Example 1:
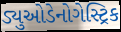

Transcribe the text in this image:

ડ્યુઓડેનોગેસ્ટ્રિક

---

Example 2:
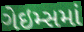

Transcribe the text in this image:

ગેઇમ્સમાં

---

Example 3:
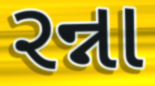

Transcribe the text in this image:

રન્ના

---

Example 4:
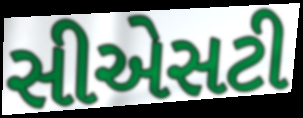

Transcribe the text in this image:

સીએસટી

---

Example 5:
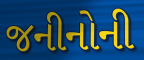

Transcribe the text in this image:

જનીનોની